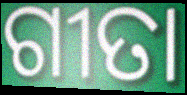
ଗୀତା